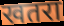
खतरा